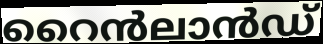
റൈൻലാൻഡ്